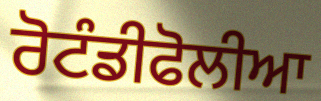
ਰੋਟੰਡੀਫੋਲੀਆ